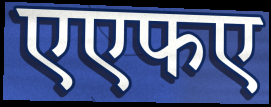
एएफए